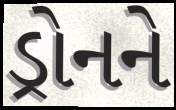
ડ્રોનને